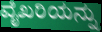
ವೈಖರಿಯನ್ನು